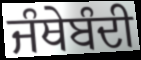
ਜੰਥੇਬੰਦੀ